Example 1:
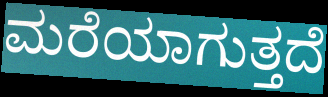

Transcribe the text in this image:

ಮರೆಯಾಗುತ್ತದೆ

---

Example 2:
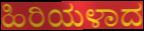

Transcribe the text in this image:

ಹಿರಿಯಳಾದ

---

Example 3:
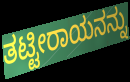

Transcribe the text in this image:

ತಟ್ಟೀರಾಯನನ್ನು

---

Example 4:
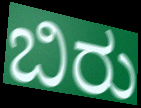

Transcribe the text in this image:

ಬಿರು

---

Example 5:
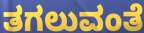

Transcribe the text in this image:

ತಗಲುವಂತೆ